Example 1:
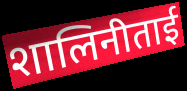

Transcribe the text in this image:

शालिनीताई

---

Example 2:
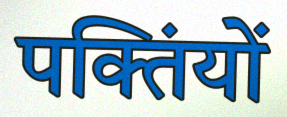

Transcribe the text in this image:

पक्तिंयों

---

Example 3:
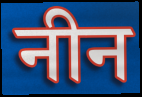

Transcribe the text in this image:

नीन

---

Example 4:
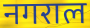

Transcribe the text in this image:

नगराल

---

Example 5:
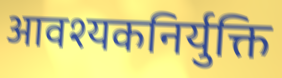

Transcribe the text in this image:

आवश्यकनिर्युक्ति